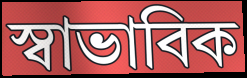
স্বাভাবিক